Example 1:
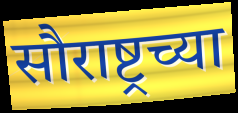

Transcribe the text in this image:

सौराष्ट्रच्या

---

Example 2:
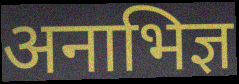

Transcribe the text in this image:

अनाभिज्ञ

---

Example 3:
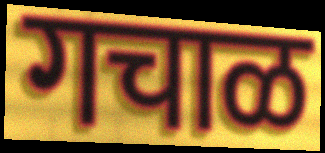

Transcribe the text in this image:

गचाळ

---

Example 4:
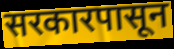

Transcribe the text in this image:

सरकारपासून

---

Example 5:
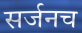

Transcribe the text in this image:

सर्जनच